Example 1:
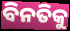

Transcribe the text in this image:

ବିନତିକୁ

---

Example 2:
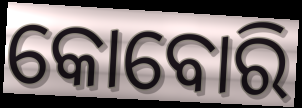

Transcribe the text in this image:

କୋବୋରି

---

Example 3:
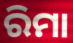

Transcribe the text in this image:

ରିମା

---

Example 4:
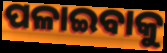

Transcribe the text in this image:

ପଳାଇବାକୁ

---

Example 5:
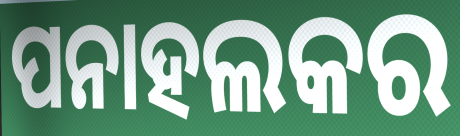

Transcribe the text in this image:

ପନାହଲକର